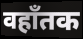
वहाँतक